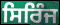
ਸਿਰਿੰਜ